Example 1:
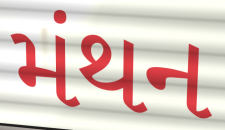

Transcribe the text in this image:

મંથન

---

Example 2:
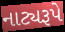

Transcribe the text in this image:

નાટ્યરૂપે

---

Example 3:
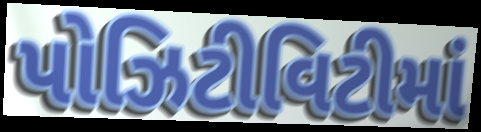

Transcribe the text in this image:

પોઝિટીવિટીમાં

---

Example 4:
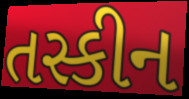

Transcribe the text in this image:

તસ્કીન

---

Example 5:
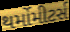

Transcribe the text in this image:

થર્મોમીટર્સ